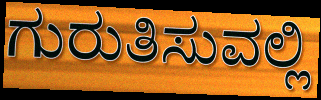
ಗುರುತಿಸುವಲ್ಲಿ